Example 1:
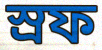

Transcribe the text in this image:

স্রফ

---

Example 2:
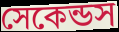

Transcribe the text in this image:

সেকেন্ডস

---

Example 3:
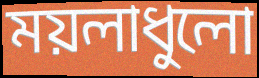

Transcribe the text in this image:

ময়লাধুলো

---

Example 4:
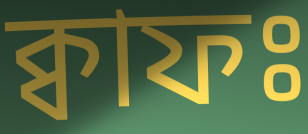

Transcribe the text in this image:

ক্বাফঃ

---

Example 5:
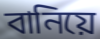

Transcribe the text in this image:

বানিয়ে